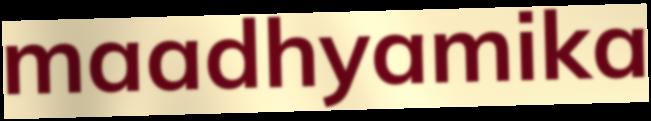
maadhyamika